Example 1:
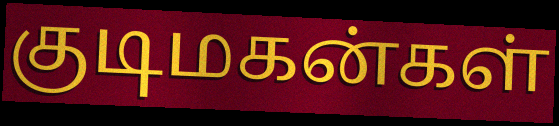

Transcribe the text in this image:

குடிமகன்கள்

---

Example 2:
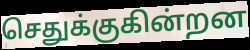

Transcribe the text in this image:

செதுக்குகின்றன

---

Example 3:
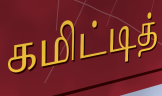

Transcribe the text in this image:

கமிட்டித்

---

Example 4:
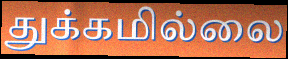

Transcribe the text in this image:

துக்கமில்லை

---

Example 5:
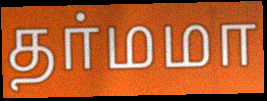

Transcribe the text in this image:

தர்மமா